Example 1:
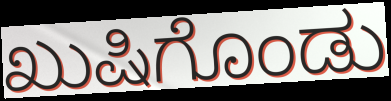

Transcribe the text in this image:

ಖುಷಿಗೊಂಡು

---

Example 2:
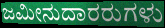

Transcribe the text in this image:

ಜಮೀನುದಾರರುಗಳು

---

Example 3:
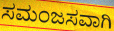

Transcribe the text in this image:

ಸಮಂಜಸವಾಗಿ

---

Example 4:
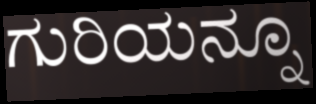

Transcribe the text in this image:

ಗುರಿಯನ್ನೂ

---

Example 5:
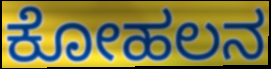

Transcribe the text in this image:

ಕೋಹಲನ